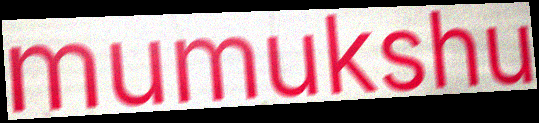
mumukshu